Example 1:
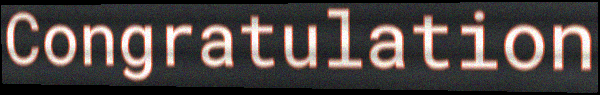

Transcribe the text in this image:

Congratulation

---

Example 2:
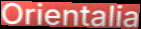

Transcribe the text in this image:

Orientalia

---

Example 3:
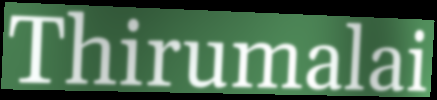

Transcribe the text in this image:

Thirumalai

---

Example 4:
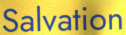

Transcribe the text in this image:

Salvation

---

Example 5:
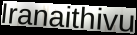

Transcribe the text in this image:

Iranaithivu